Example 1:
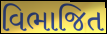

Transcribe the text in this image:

વિભાજિત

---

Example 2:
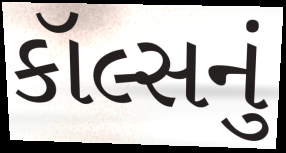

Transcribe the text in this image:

કૉલ્સનું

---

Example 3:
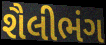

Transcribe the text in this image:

શૈલીભંગ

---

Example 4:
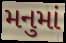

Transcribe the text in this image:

મનુમાં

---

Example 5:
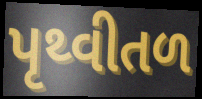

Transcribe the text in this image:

પૃથ્વીતળ